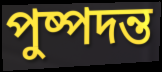
পুষ্পদন্ত